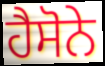
ਹੈਸੋਨੇ